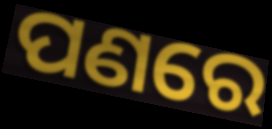
ପଣରେ